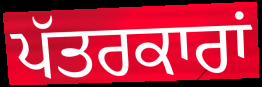
ਪੱਤਰਕਾਰਾਂ